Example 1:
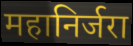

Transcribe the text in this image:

महानिर्जरा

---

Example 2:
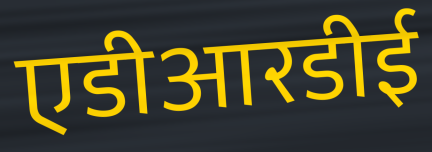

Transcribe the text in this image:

एडीआरडीई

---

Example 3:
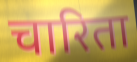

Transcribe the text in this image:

चारिता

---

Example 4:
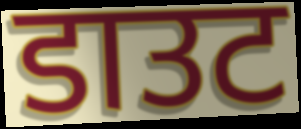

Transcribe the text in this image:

डाउट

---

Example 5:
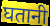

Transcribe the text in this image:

घतानी